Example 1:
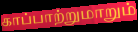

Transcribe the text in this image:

காப்பாற்றுமாறும்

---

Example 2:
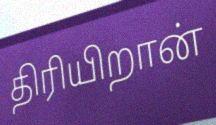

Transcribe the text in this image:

திரியிறான்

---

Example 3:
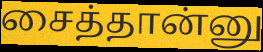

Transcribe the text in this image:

சைத்தான்னு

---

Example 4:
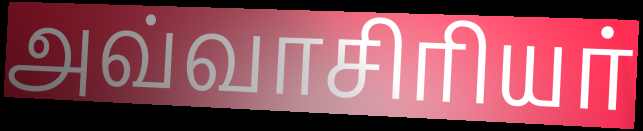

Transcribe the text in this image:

அவ்வாசிரியர்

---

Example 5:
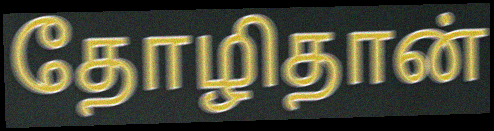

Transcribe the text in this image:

தோழிதான்